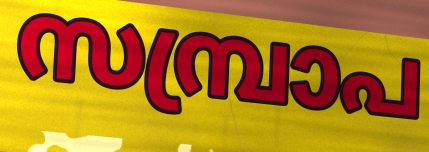
സമ്പ്രാപ